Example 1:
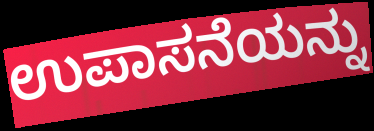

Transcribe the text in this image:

ಉಪಾಸನೆಯನ್ನು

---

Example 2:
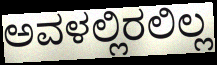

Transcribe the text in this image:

ಅವಳಲ್ಲಿರಲಿಲ್ಲ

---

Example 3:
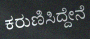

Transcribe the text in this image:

ಕರುಣಿಸಿದ್ದೇನೆ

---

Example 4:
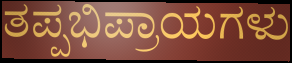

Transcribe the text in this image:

ತಪ್ಪಭಿಪ್ರಾಯಗಳು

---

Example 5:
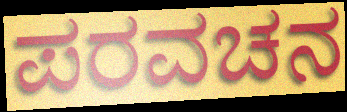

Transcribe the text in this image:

ಪರವಚನ